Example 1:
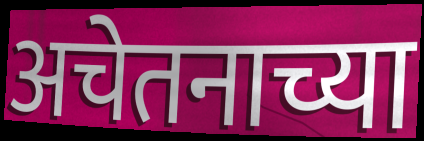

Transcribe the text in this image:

अचेतनाच्या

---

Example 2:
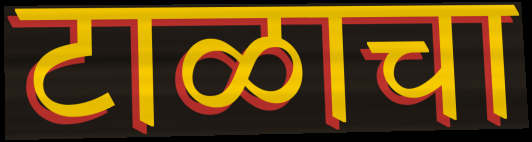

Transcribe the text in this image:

टाळाचा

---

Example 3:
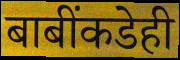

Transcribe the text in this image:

बाबींकडेही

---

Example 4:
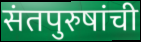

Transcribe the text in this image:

संतपुरुषांची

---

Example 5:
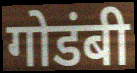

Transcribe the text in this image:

गोडंबी